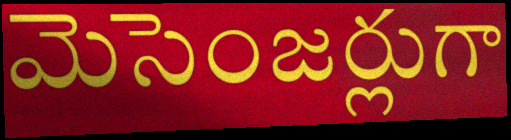
మెసెంజర్లుగా